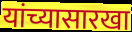
यांच्यासारखा